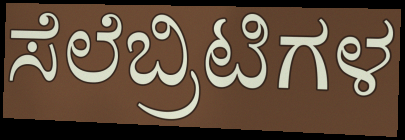
ಸೆಲೆಬ್ರಿಟಿಗಳ